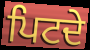
ਪਿਟਦੇ